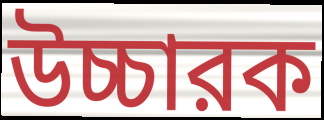
উচ্চারক